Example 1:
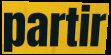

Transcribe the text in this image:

partir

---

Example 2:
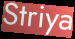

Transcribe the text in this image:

Striya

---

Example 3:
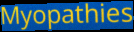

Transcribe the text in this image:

Myopathies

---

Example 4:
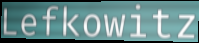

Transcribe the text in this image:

Lefkowitz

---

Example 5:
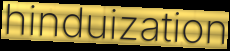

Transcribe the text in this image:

hinduization